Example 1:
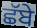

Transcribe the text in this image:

ਛੱਬੇ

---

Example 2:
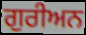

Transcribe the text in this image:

ਗੁਰੀਅਨ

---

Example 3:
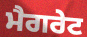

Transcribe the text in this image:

ਮੈਗਰੇਟ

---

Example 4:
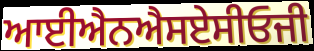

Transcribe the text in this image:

ਆਈਐਨਐਸਏਸੀਓਜੀ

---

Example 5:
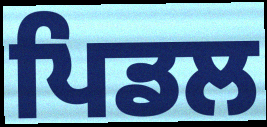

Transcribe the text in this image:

ਪਿਡਲ